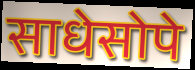
साधेसोपे